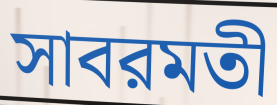
সাবরমতী